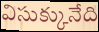
విసుక్కునేది